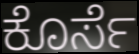
ಕೊರ್ಸೆ